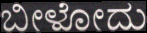
ಬೀಳೋದು